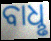
ବାଧୢ